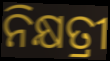
ନିକ୍ଷତ୍ରୀ